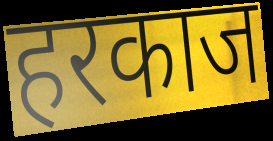
हरकाज